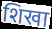
शिखा